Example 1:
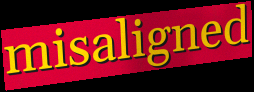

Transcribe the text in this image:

misaligned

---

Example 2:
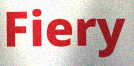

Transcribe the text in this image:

Fiery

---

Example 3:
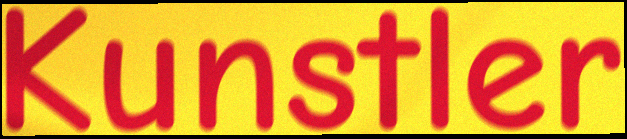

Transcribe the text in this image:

Kunstler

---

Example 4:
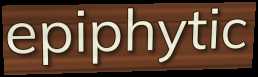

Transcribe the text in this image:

epiphytic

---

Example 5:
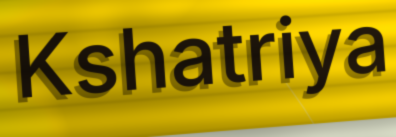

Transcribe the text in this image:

Kshatriya